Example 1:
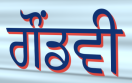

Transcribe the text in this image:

ਗੌਂਡਵੀ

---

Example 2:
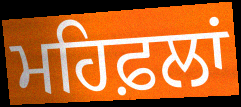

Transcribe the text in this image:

ਮਹਿਫ਼ਲਾਂ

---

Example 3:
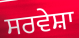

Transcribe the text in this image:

ਸਰਵੇਸ਼ਾ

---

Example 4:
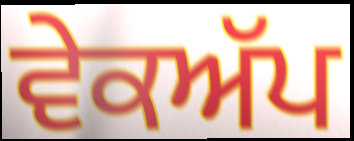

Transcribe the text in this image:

ਵੇਕਅੱਪ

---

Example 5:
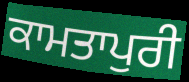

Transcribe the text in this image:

ਕਾਮਤਾਪੁਰੀ